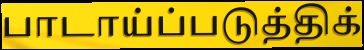
பாடாய்ப்படுத்திக்